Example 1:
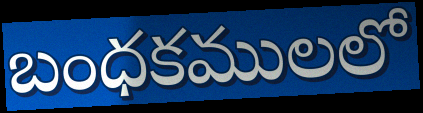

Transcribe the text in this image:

బంధకములలో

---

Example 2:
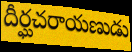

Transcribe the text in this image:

దీర్ఘచరాయణుడు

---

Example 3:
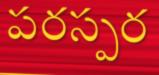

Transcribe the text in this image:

పరస్పర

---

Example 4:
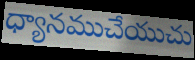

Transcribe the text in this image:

ధ్యానముచేయుచు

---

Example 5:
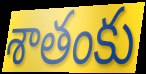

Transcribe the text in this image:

శాతంకు